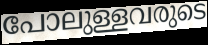
പോലുള്ളവരുടെ